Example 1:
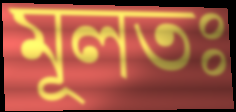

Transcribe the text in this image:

মূলতঃ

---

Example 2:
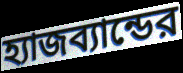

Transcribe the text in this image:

হ্যাজব্যান্ডের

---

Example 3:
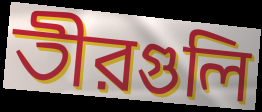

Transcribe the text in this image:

তীরগুলি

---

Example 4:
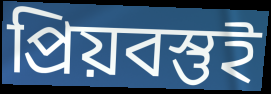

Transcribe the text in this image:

প্রিয়বস্তুই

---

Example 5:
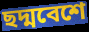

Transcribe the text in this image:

ছদ্মবেশে